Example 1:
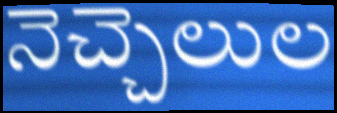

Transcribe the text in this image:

నెచ్చెలుల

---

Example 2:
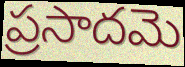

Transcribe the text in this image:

ప్రసాదమె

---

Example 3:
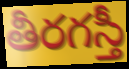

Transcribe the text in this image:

తీరగస్తీ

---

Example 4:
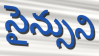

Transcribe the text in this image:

సైన్సుని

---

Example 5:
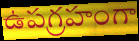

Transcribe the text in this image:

ఉపగ్రహంగా